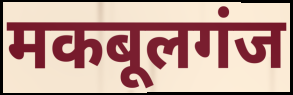
मकबूलगंज